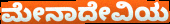
ಮೇನಾದೇವಿಯ